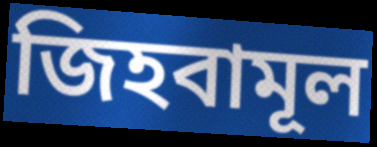
জিহবামূল